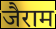
जैराम